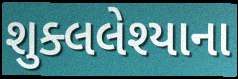
શુક્લલેશ્યાના